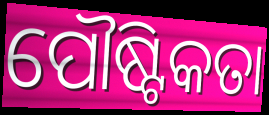
ପୌଷ୍ଟିକତା